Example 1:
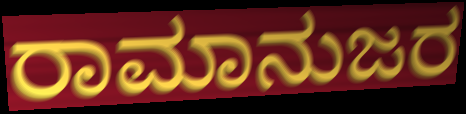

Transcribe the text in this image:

ರಾಮಾನುಜರ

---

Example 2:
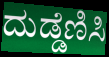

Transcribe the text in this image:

ದುಡ್ಡೆಣಿಸಿ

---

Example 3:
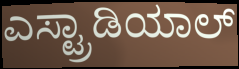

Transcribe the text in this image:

ಎಸ್ಟ್ರಾಡಿಯಾಲ್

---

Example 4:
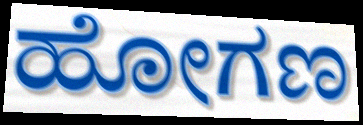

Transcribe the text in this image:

ಹೋಗಣ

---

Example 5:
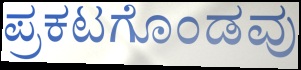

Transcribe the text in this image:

ಪ್ರಕಟಗೊಂಡವು